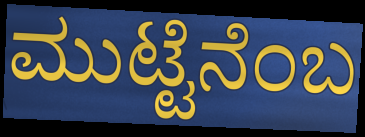
ಮುಟ್ಟೆನೆಂಬ